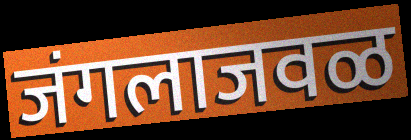
जंगलाजवळ